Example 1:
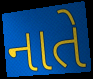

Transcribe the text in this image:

નાતે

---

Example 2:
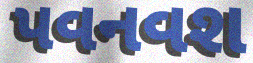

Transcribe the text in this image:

પવનવશ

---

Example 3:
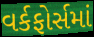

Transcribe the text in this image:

વર્કફોર્સમાં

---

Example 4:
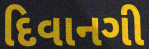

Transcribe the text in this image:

દિવાનગી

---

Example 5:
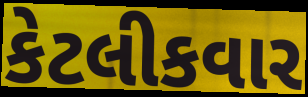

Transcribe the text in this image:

કેટલીકવાર